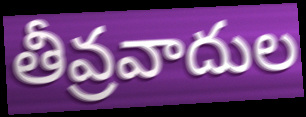
తీవ్రవాదుల